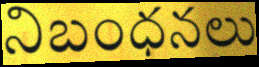
నిబంధనలు